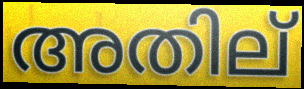
അതില്